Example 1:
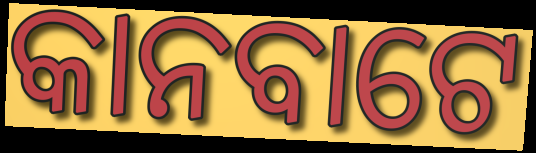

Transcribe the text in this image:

କାନବାଟେ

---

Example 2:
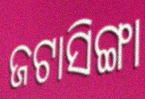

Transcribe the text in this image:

ଜଟାସିଙ୍ଗା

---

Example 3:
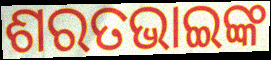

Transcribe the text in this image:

ଶରତଭାଇଙ୍କ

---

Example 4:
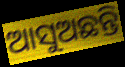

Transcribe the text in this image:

ଆସୁଅଛନ୍ତି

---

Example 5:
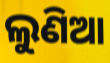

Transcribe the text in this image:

ଲୁଣିଆ